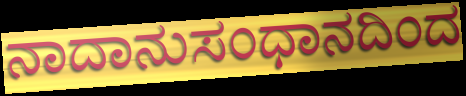
ನಾದಾನುಸಂಧಾನದಿಂದ